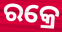
ରକ୍ରେ